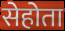
सेहोता